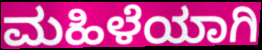
ಮಹಿಳೆಯಾಗಿ